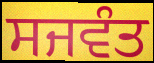
ਸਜਵੰਤ